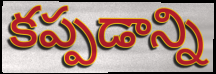
కప్పడాన్ని